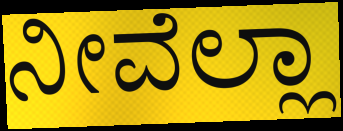
ನೀವೆಲ್ಲಾ